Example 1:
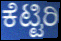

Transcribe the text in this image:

ಕೆಟ್ಟಿರಿ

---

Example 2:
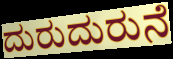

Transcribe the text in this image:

ದುರುದುರುನೆ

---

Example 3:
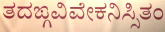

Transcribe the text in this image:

ತದಙ್ಗವಿವೇಕನಿಸ್ಸಿತಂ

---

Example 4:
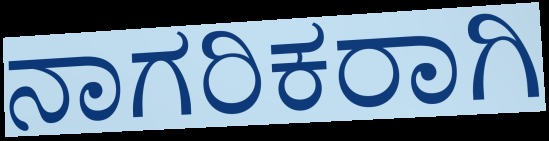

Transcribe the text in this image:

ನಾಗರಿಕರಾಗಿ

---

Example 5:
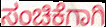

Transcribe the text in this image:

ಸಂಚಿಕೆಗಾಗಿ